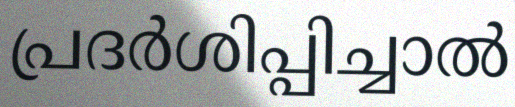
പ്രദർശിപ്പിച്ചാൽ